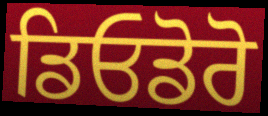
ਡਿਓਡੋਰੋ